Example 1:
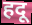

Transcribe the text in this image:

हदू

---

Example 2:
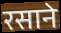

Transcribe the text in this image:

रसाने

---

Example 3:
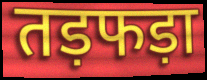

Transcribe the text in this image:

तड़फड़ा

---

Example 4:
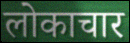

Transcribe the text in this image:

लोकाचार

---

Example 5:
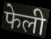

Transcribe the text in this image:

फेली